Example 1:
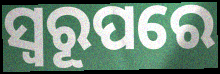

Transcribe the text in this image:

ସ୍ଵରୂପରେ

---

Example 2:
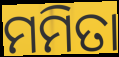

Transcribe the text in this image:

ମମିତା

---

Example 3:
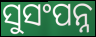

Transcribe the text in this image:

ସୁସଂପନ୍ନ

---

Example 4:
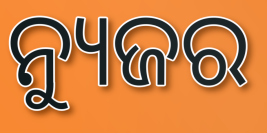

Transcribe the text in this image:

ନ୍ୟୁଜର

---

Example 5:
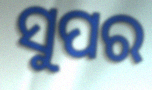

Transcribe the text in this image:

ସୁପର